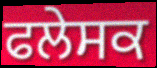
ਫਲੇਸਕ